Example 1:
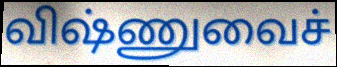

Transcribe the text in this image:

விஷ்ணுவைச்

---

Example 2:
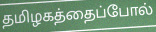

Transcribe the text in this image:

தமிழகத்தைப்போல்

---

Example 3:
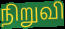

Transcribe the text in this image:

நிறுவி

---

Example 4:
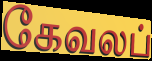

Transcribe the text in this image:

கேவலப்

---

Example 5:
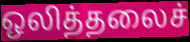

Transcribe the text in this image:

ஒலித்தலைச்